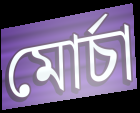
মোর্চা